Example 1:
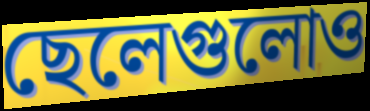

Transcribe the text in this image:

ছেলেগুলোও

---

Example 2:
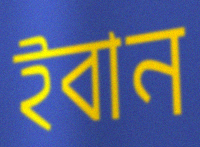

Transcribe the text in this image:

ইবান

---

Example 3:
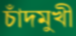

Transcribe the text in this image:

চাঁদমুখী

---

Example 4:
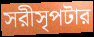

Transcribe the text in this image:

সরীসৃপটার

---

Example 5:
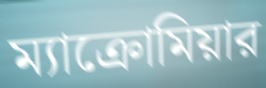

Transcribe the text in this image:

ম্যাক্রোমিয়ার